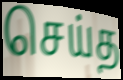
செய்த